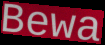
Bewa